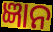
ଜ୍ଞାନ